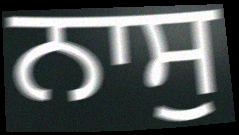
ਨਾਸੁ